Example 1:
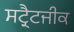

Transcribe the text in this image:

ਸਟ੍ਰੈਟਜੀਕ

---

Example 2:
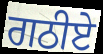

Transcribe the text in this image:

ਗਠੀਏ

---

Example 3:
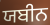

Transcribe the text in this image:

ਯਬੀਨ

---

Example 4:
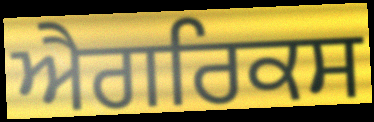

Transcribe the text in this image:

ਐਗਰਿਕਸ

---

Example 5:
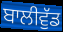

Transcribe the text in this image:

ਬਾਲੀਵੁੱਡ